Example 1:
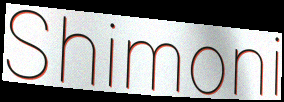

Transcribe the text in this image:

Shimoni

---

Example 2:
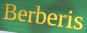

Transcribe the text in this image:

Berberis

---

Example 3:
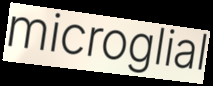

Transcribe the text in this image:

microglial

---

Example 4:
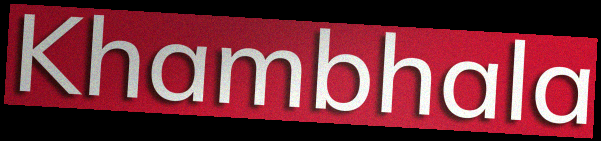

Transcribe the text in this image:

Khambhala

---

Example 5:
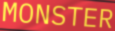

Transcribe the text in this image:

MONSTER